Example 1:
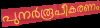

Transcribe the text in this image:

പുനർരൂപീകരണം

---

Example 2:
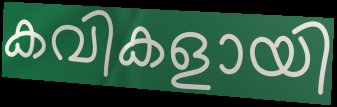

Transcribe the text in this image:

കവികളായി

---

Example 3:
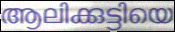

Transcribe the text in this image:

ആലിക്കുട്ടിയെ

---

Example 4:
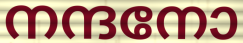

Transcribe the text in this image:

നന്ദനോ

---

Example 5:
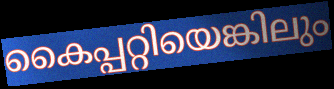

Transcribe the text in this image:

കൈപ്പറ്റിയെങ്കിലും